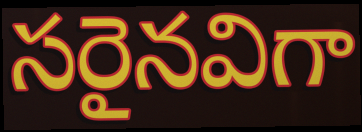
సరైనవిగా